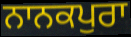
ਨਾਨਕਪੁਰਾ